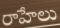
రాహేలు